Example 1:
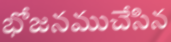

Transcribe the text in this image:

భోజనముచేసిన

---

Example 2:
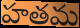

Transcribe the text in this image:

హతమ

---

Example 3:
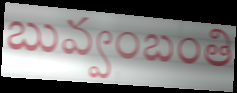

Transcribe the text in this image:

బువ్వంబంతి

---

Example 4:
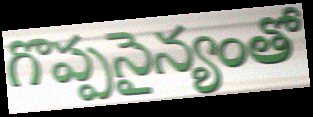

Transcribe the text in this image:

గొప్పసైన్యంతో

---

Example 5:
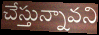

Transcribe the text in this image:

చేస్తున్నావని